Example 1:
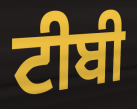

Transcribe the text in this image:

ਟੀਬੀ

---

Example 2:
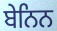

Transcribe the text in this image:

ਬੇਨਿਨ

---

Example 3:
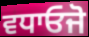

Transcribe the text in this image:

ਵਧਾਓਜੋ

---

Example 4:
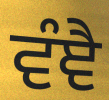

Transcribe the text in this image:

ਵੰਞੈ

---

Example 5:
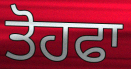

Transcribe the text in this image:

ਤੋਹਫਾ